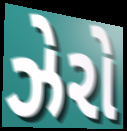
ઝેરો